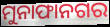
ମୁନାଫାନଗର